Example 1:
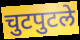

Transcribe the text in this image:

चुटपुटले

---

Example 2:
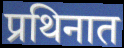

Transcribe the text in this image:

प्रथिनात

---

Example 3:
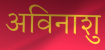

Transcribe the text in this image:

अविनाशु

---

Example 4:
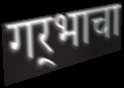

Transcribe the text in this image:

गर्भाचा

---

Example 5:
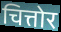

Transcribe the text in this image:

चित्तोर